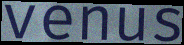
venus